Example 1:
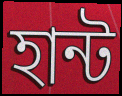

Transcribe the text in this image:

হান্ট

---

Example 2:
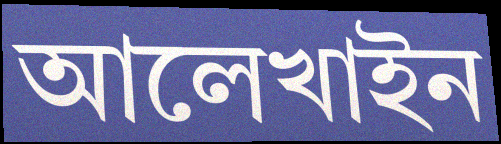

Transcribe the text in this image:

আলেখাইন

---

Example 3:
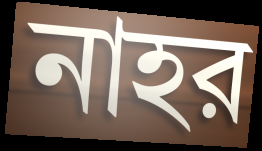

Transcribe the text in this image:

নাহর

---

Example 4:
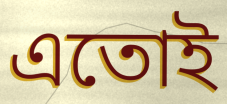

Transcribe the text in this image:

এতোই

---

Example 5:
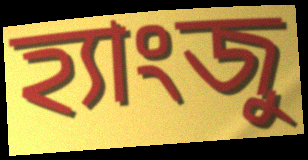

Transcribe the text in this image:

হ্যাংজু